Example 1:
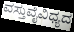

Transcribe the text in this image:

ವಸ್ತುವೈವಿಧ್ಯದ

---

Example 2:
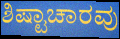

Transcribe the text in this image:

ಶಿಷ್ಟಾಚಾರವು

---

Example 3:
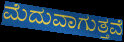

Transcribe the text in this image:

ಮೆದುವಾಗುತ್ತವೆ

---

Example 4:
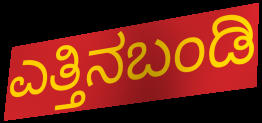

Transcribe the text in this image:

ಎತ್ತಿನಬಂಡಿ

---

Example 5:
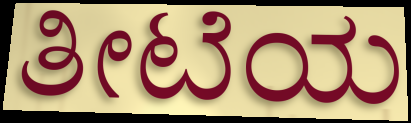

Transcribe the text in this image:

ತೀಟೆಯ